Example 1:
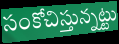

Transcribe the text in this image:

సంకోచిస్తున్నట్టు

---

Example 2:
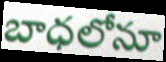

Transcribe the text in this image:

బాధలోనూ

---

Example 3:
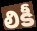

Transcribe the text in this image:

లికీ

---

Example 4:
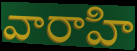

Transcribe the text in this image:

వారాహి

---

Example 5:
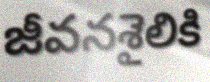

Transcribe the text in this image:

జీవనశైలికి